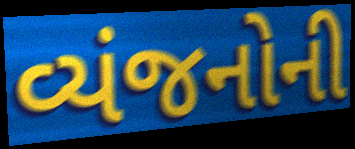
વ્યંજનોની